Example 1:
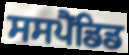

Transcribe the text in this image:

ਸਸਪੈਂਡਿਡ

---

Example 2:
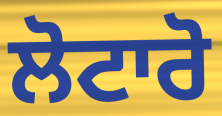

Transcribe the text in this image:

ਲੋਟਾਰੋ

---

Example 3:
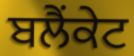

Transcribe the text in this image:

ਬਲੈਂਕੇਟ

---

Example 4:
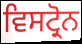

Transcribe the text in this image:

ਵਿਸਟ੍ਰੋਨ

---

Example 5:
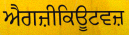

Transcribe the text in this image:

ਐਗਜ਼ੀਕਿਊਟਵਜ਼